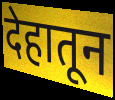
देहातून